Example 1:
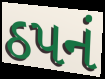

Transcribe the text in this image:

ઠપનં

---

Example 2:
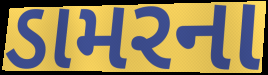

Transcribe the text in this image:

ડામરના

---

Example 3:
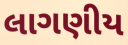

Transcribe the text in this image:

લાગણીય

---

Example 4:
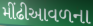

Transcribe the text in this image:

મીંઢીઆવળના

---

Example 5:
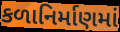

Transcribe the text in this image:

કળાનિર્માણમાં